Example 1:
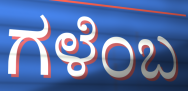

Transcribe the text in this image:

ಗಳೆಂಬ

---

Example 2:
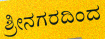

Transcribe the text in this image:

ಶ್ರೀನಗರದಿಂದ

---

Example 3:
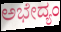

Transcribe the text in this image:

ಅಭೇದ್ಯಂ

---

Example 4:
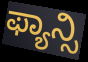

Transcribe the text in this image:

ಫ್ಯಾನ್ಸಿ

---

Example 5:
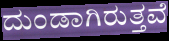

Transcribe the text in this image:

ದುಂಡಾಗಿರುತ್ತವೆ